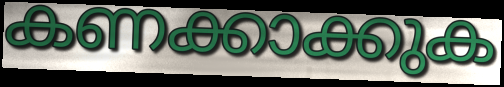
കണക്കാക്കുക